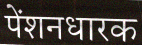
पेंशनधारक